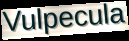
Vulpecula